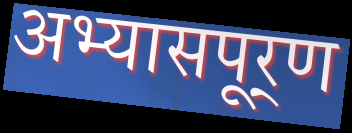
अभ्यासपूर्ण